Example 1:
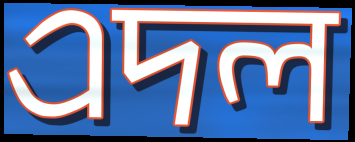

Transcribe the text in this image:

এদল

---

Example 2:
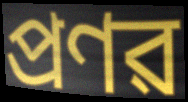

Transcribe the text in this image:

প্ৰণৱ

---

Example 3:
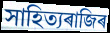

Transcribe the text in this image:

সাহিত্যৰাজিৰ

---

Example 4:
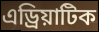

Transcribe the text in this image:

এড্ৰিয়াটিক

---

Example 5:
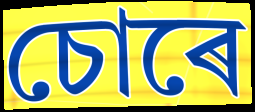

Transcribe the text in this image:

চোৰে